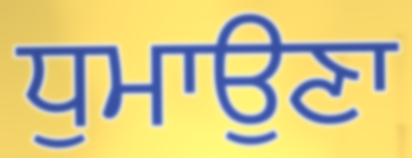
ਧੁਮਾਉਣਾ